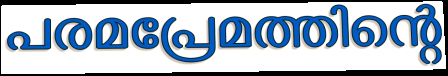
പരമപ്രേമത്തിന്റെ